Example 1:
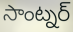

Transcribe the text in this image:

సాంట్నర్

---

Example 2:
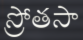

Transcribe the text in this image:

స్రోతసా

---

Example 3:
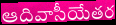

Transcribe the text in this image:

ఆదివాసీయేతర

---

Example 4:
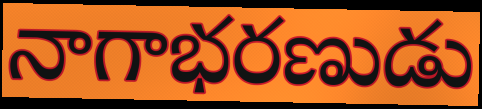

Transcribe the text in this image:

నాగాభరణుడు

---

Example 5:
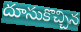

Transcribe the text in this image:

దూసుకొచ్చిన